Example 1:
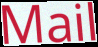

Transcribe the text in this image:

Mail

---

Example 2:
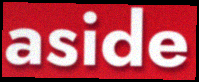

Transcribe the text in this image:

aside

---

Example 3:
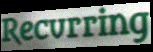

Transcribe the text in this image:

Recurring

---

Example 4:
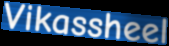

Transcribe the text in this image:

Vikassheel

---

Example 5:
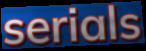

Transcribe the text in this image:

serials